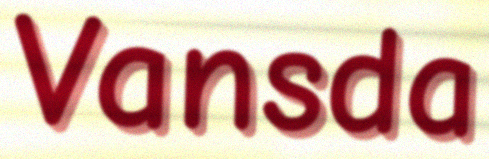
Vansda